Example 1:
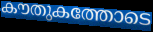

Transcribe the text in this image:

കൗതുകത്തോടെ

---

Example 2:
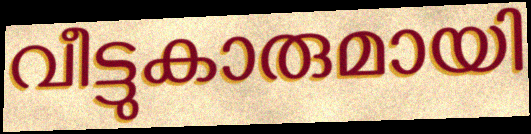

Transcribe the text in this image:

വീട്ടുകാരുമായി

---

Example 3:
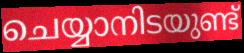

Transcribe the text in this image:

ചെയ്യാനിടയുണ്ട്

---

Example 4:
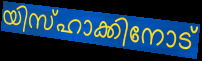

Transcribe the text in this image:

യിസ്ഹാക്കിനോട്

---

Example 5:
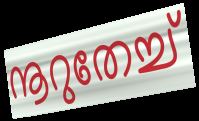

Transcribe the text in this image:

നൂറുതേച്ച്